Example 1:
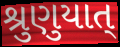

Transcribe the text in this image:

શ્રુણુયાત્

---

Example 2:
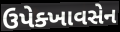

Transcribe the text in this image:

ઉપેક્ખાવસેન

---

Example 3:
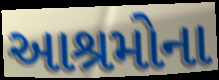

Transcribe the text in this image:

આશ્રમોના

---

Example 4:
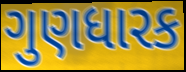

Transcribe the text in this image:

ગુણધારક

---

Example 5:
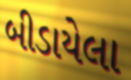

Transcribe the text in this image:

બીડાયેલા